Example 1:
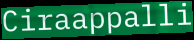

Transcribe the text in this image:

Ciraappalli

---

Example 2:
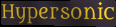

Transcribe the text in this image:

Hypersonic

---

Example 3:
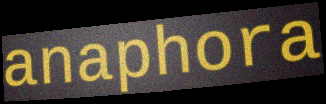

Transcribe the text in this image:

anaphora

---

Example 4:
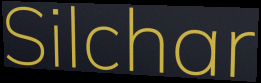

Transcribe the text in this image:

Silchar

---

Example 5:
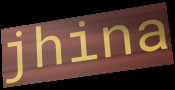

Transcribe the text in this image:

jhina